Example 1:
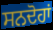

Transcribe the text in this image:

ਸਨਦੋਹਾਂ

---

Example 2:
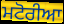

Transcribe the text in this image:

ਮਟੋਰੀਆ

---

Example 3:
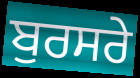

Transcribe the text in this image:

ਬੁਰਸਰੇ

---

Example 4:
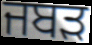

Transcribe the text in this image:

ਜਬੜ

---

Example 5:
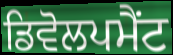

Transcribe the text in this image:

ਡਿਵੋਲਪਮੈਂਟ